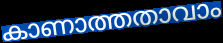
കാണാത്തതാവാം